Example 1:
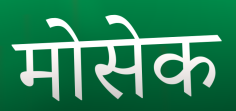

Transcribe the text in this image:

मोसेक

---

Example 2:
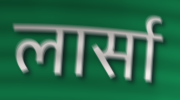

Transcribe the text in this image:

लार्सा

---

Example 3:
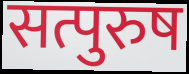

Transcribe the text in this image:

सत्पुरुष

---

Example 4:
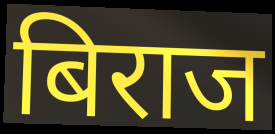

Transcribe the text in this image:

बिराज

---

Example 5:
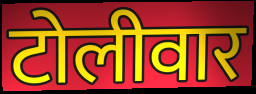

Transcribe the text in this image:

टोलीवार